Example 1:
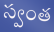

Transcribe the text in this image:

స్వంత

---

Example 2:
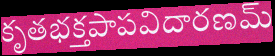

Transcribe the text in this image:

కృతభక్తపాపవిదారణమ్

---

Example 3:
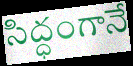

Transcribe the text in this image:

సిద్ధంగానే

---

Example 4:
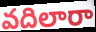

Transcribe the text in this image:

వదిలారా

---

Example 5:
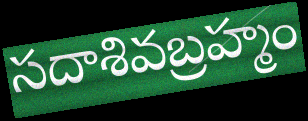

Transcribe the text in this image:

సదాశివబ్రహ్మం